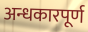
अन्धकारपूर्ण